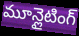
మూన్లైటింగ్